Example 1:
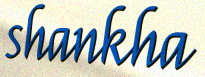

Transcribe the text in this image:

shankha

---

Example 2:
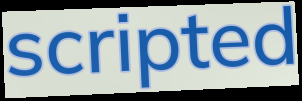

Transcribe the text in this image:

scripted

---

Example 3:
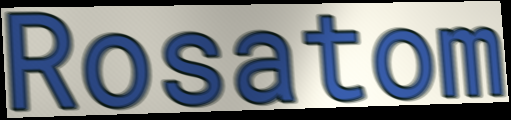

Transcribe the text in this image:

Rosatom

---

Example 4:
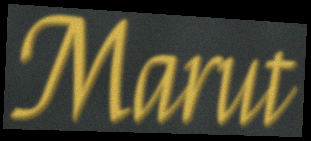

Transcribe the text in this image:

Marut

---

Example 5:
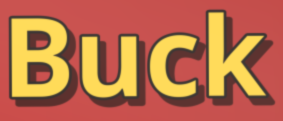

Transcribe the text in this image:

Buck